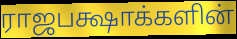
ராஜபக்ஷாக்களின்